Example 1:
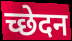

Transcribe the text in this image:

च्छेदन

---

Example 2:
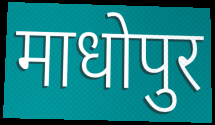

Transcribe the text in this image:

माधोपुर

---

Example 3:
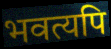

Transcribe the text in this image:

भवत्यपि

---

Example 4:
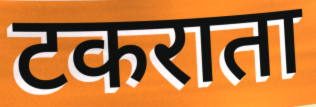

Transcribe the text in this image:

टकराता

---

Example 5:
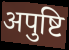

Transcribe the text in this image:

अपुष्टि